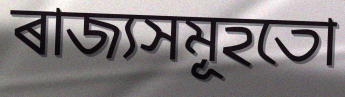
ৰাজ্যসমূহতো